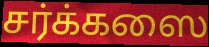
சர்க்கஸை